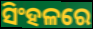
ସିଂହଳରେ